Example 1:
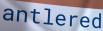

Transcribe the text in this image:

antlered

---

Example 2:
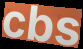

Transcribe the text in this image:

cbs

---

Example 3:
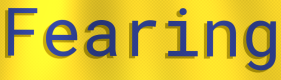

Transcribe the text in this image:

Fearing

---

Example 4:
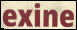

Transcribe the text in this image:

exine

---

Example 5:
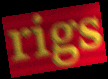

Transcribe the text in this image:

rigs